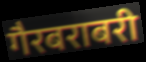
गैरबराबरी